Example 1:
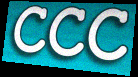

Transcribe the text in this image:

CCC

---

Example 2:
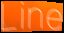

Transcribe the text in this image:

Line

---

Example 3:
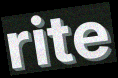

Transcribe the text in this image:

rite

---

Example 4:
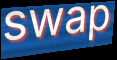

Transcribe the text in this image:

swap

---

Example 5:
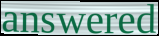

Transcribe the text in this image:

answered